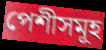
পেশীসমূহ